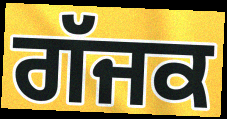
ਗੱਜਕ